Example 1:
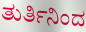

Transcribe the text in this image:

ತುರ್ತಿನಿಂದ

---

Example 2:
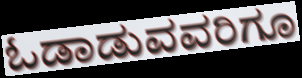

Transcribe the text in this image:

ಓಡಾಡುವವರಿಗೂ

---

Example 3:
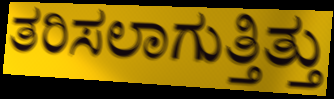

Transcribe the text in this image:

ತರಿಸಲಾಗುತ್ತಿತ್ತು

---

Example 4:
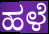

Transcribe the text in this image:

ಹಳೆ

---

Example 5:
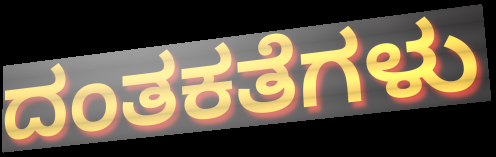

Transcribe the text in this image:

ದಂತಕತೆಗಳು